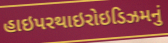
હાઇપરથાઇરોઇડિઝમનું